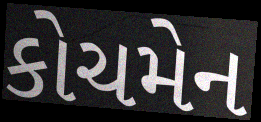
કોચમેન